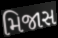
મિજાસ